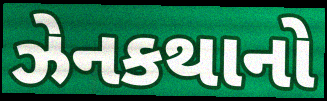
ઝેનકથાનો